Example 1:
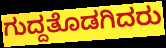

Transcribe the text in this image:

ಗುದ್ದತೊಡಗಿದರು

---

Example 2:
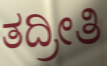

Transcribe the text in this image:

ತದ್ರೀತಿ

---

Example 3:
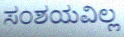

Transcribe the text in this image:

ಸಂಶಯವಿಲ್ಲ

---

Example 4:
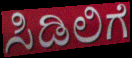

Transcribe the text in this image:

ಸಿಡಿಲಿಗೆ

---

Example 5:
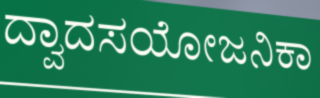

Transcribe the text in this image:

ದ್ವಾದಸಯೋಜನಿಕಾ